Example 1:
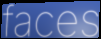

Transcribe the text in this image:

faces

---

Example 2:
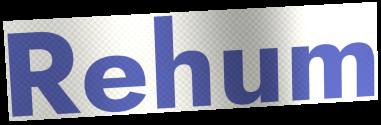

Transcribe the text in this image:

Rehum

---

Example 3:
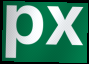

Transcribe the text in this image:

px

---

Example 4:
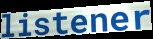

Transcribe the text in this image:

listener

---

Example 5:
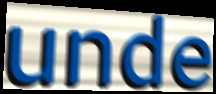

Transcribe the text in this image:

unde